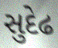
સુદેઢ